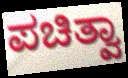
ಪಚಿತ್ವಾ